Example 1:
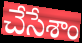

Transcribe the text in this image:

చేసేశాం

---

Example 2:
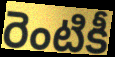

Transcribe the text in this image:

రెంటికీ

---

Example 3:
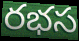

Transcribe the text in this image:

రభస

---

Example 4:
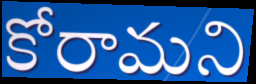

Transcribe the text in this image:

కోరామని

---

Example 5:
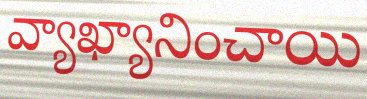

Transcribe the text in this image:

వ్యాఖ్యానించాయి